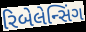
રિબેલેન્સિંગ